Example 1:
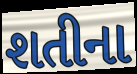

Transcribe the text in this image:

શતીના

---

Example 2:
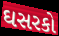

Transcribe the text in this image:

ઘસરકો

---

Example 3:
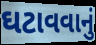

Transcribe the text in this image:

ઘટાવવાનું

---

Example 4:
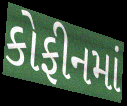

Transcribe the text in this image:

કોફીનમાં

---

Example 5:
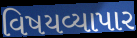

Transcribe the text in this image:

વિષયવ્યાપાર